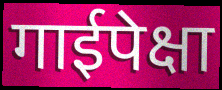
गाईपेक्षा